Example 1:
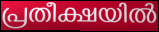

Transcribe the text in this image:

പ്രതീക്ഷയിൽ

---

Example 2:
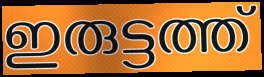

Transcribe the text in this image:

ഇരുട്ടത്ത്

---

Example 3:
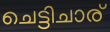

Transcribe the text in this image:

ചെട്ടിചാര്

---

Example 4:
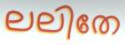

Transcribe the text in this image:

ലലിതേ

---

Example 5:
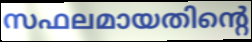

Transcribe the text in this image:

സഫലമായതിന്റെ